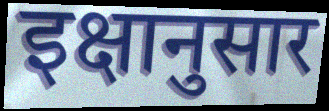
इक्षानुसार